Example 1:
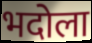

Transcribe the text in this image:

भदोला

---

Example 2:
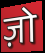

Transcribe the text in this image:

ज़ो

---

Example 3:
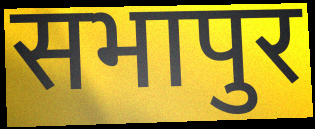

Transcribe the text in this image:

सभापुर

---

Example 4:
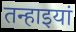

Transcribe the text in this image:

तन्हाइयां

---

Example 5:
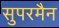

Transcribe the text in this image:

सुपरमैन